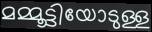
മമ്മൂട്ടിയോടുള്ള